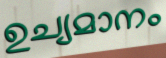
ഉച്യമാനം